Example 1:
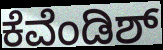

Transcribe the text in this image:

ಕೆವೆಂಡಿಶ್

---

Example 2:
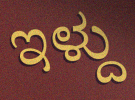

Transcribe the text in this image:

ಇಳ್ದು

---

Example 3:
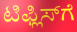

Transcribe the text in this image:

ಟಿಫ್ಲಿಸ್‍ಗೆ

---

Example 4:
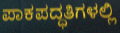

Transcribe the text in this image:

ಪಾಕಪದ್ಧತಿಗಳಲ್ಲಿ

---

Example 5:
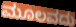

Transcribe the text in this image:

ಮೂಲವದು